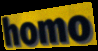
homo